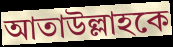
আতাউল্লাহকে